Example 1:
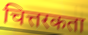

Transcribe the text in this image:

चित्तरकता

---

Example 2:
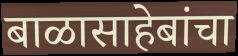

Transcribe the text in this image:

बाळासाहेबांचा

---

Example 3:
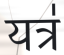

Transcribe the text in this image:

यत्र॑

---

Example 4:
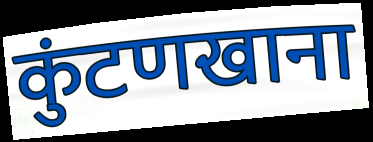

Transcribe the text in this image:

कुंटणखाना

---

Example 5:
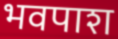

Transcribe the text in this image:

भवपाश